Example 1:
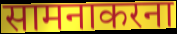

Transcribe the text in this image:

सामनाकरना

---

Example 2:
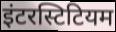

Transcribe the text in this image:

इंटरस्टिटियम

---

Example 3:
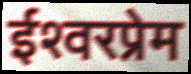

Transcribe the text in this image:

ईश्वरप्रेम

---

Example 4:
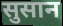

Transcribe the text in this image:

सुसान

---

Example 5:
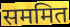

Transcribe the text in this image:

सममित